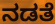
ನಡತೆ